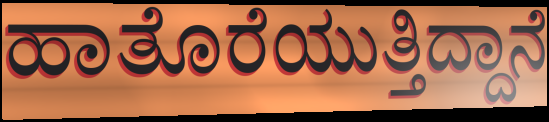
ಹಾತೊರೆಯುತ್ತಿದ್ದಾನೆ